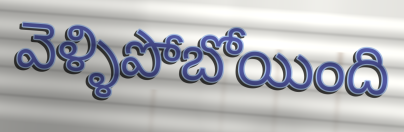
వెళ్ళిపోబోయింది